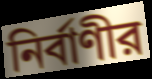
নির্বাণীর